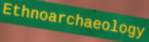
Ethnoarchaeology